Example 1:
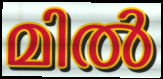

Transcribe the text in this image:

മിൽ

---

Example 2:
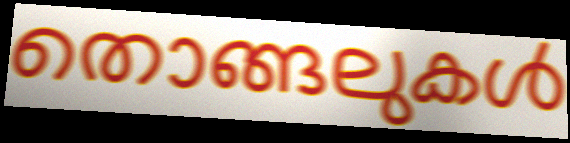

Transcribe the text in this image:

തൊങ്ങലുകൾ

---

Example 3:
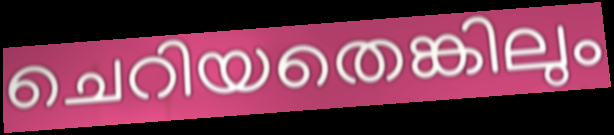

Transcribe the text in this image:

ചെറിയതെങ്കിലും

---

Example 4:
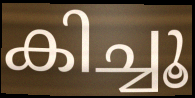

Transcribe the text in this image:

കിച്ചൂ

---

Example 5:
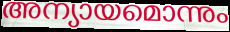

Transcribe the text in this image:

അന്യായമൊന്നും